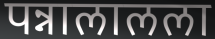
पन्नालालला